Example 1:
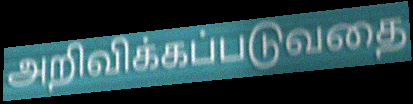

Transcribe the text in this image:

அறிவிக்கப்படுவதை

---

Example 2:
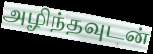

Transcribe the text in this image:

அழிந்தவுடன்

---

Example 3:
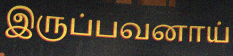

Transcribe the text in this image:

இருப்பவனாய்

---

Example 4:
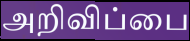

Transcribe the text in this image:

அறிவிப்பை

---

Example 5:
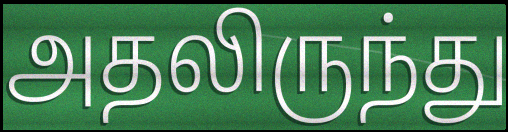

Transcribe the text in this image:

அதலிருந்து